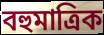
বহুমাত্রিক